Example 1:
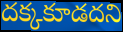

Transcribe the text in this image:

దక్కకూడదని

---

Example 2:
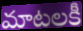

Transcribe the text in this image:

మాటలకీ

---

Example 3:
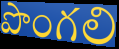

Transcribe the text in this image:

పొంగలి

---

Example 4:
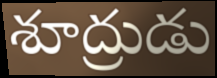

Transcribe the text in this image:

శూద్రుడు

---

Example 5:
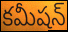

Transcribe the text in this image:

కమీషన్